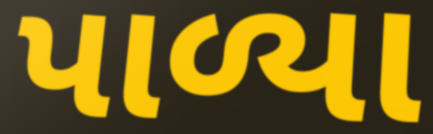
પાળ્યા